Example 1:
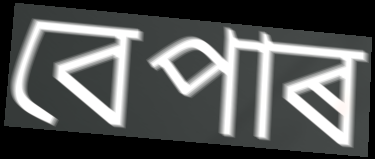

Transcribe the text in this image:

বেপাৰ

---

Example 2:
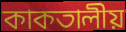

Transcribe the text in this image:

কাকতালীয়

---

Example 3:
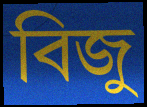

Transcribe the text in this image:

বিজু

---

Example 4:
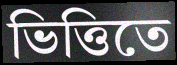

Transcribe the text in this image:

ভিত্তিতে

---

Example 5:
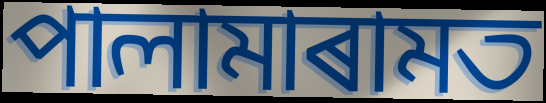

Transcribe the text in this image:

পালামাৰামত